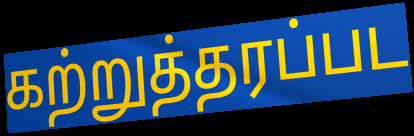
கற்றுத்தரப்பட